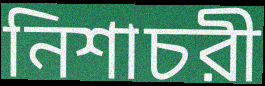
নিশাচরী